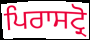
ਪਿਰਾਸਟ੍ਰੋ